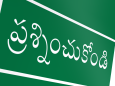
ప్రశ్నించుకోండి